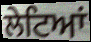
ਲੇਟਿਆਂ